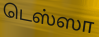
டெஸ்ஸா